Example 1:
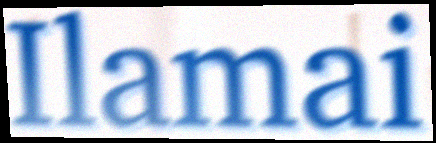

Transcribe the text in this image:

Ilamai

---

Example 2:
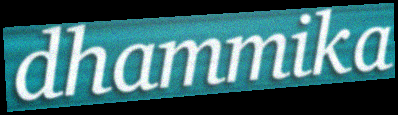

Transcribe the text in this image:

dhammika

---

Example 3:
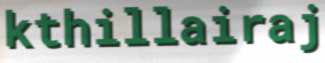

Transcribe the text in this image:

kthillairaj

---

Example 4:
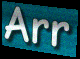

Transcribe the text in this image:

Arr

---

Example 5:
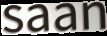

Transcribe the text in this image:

saan